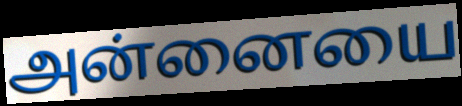
அன்னையை